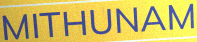
MITHUNAM